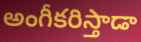
అంగీకరిస్తాడా